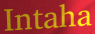
Intaha